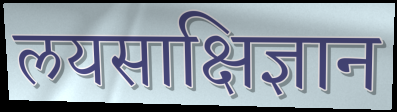
लयसाक्षिज्ञान